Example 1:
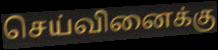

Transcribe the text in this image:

செய்வினைக்கு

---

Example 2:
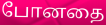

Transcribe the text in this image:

போனதை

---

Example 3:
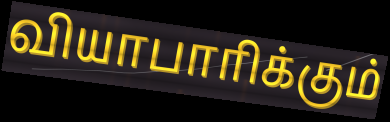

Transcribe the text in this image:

வியாபாரிக்கும்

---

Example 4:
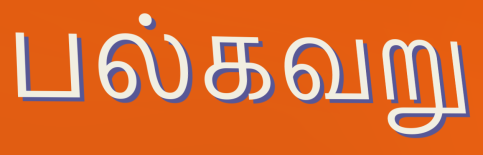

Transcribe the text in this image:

பல்கவறு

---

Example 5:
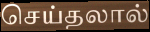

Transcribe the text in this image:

செய்தலால்